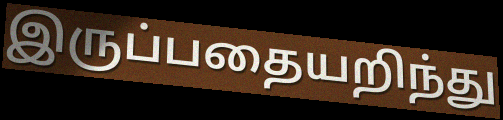
இருப்பதையறிந்து